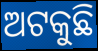
ଅଟକୁଛି